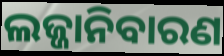
ଲଜ୍ଜାନିବାରଣ